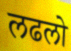
लढलो